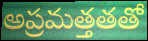
అప్రమత్తతతో